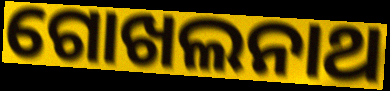
ଗୋଖଲନାଥ